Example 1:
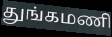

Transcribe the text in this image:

துங்கமணி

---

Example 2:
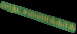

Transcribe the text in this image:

வரதட்சணைக்காக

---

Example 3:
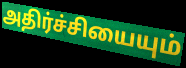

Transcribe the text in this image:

அதிர்ச்சியையும்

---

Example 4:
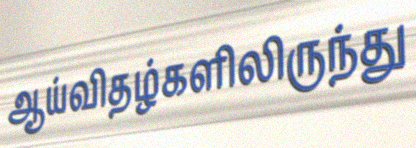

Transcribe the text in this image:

ஆய்விதழ்களிலிருந்து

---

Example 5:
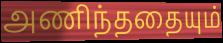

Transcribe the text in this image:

அணிந்ததையும்